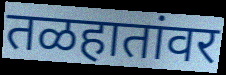
तळहातांवर